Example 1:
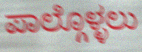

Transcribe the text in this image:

ಪಾಲ್ಗೊಳ್ಳಲು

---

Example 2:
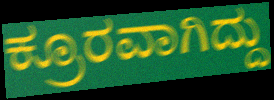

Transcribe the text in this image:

ಕ್ರೂರವಾಗಿದ್ದು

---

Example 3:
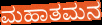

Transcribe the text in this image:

ಮಹಾತಮನ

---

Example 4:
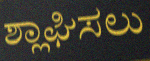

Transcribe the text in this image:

ಶ್ಲಾಘಿಸಲು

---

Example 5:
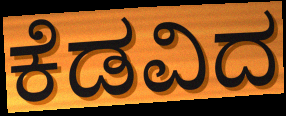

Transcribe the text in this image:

ಕೆಡವಿದ